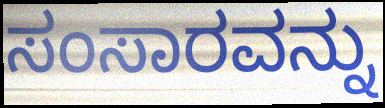
ಸಂಸಾರವನ್ನು